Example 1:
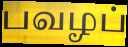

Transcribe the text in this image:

பவழப்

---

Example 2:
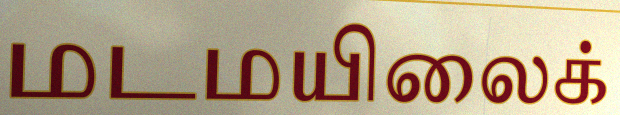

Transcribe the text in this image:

மடமயிலைக்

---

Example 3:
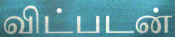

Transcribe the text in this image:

விட்படன்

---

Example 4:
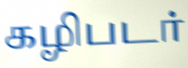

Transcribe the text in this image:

கழிபடர்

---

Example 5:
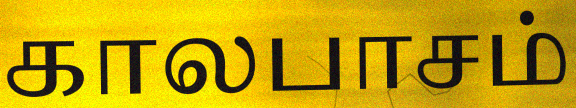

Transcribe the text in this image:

காலபாசம்